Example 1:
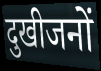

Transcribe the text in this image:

दुखीजनों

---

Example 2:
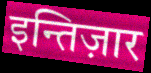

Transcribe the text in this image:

इन्तिज़ार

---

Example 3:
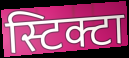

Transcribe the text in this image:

स्टिक्टा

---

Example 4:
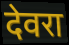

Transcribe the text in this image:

देवरा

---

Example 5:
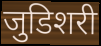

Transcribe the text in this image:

जुडिशरी